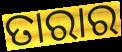
ତାରାର